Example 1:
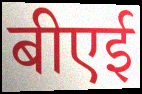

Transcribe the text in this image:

बीएई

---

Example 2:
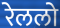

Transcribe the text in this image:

रेललो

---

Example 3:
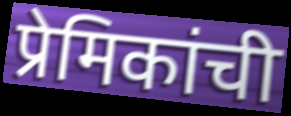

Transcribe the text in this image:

प्रेमिकांची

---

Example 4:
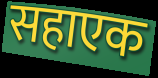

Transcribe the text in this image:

सहाएक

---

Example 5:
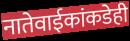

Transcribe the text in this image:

नातेवाईकांकडेही